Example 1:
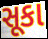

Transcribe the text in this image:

સૂકા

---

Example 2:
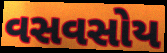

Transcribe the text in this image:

વસવસોય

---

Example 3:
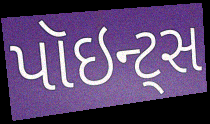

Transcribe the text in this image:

પૉઇન્ટ્સ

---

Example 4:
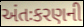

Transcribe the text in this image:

અંતઃકરણની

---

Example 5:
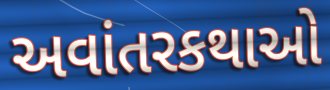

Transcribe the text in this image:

અવાંતરકથાઓ